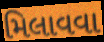
મિલાવવા